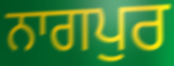
ਨਾਗਪੁਰ